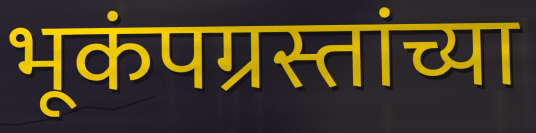
भूकंपग्रस्तांच्या